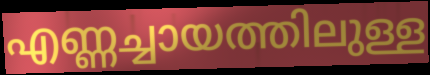
എണ്ണച്ചായത്തിലുള്ള